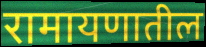
रामायणातील